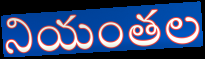
నియంతల